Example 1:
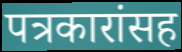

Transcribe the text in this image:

पत्रकारांसह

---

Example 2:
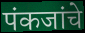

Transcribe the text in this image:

पंकजांचे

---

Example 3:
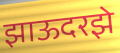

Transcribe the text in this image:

झाऊदरझे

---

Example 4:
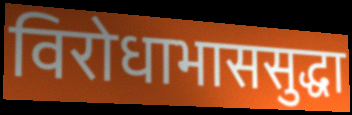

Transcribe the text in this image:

विरोधाभाससुद्धा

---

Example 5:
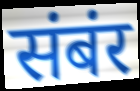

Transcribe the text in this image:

संबंर